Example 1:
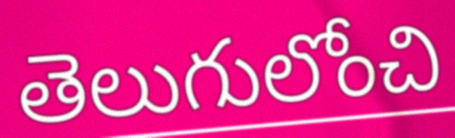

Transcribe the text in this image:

తెలుగులోంచి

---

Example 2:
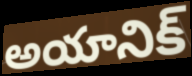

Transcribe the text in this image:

అయానిక్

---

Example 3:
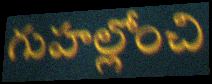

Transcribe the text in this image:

గుహల్లోంచి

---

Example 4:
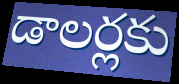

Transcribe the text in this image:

డాలర్లకు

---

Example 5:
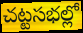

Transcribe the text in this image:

చట్టసభల్లో